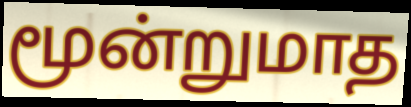
மூன்றுமாத